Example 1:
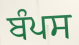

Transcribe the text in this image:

ਬੰਪਸ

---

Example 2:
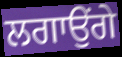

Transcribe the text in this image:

ਲਗਾਉਂਗੇ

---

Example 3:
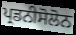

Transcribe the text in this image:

ਪ੍ਰਡਨੀਸੋਲੋਨ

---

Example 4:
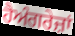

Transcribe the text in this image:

ਹੈਅੰਗਰੇਜ਼ਾਂ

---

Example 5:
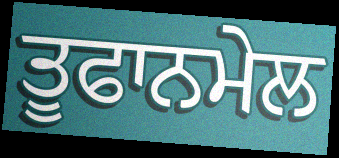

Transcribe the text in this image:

ਤੂਫਾਨਮੇਲ